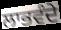
ਲਾਭਵੰਦੇ